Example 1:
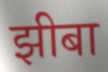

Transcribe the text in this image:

झीबा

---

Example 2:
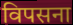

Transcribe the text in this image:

विपसना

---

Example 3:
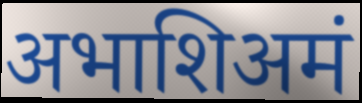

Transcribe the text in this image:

अभाशिअमं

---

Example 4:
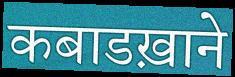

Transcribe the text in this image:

कबाडख़ाने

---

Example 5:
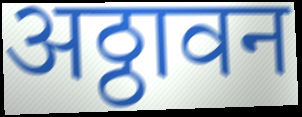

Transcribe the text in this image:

अठ्ठावन